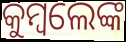
କୁମ୍ବଲେଙ୍କ